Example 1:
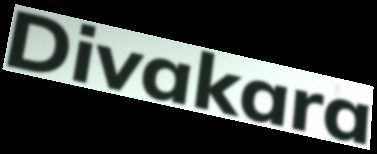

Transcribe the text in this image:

Divakara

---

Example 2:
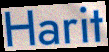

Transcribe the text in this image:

Harit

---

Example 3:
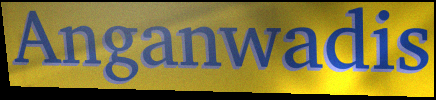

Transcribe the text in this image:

Anganwadis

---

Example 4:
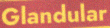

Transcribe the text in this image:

Glandular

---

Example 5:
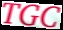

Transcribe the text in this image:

TGC